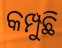
କମ୍ପୁଛି